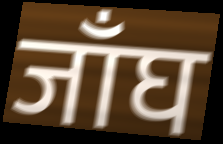
जाँघ